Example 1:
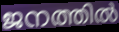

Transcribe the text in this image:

ജനത്തിൽ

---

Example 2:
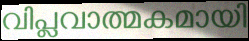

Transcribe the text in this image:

വിപ്ലവാത്മകമായി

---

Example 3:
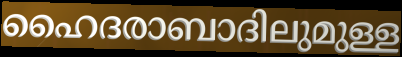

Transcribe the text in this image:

ഹൈദരാബാദിലുമുള്ള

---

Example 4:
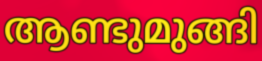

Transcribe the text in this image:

ആണ്ടുമുങ്ങി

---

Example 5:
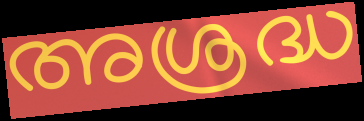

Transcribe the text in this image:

അശ്രദ്ധ